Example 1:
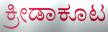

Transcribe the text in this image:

ಕ್ರೀಡಾಕೂಟ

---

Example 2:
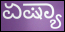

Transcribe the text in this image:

ಏಷ್ಯಾ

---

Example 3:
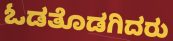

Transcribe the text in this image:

ಓಡತೊಡಗಿದರು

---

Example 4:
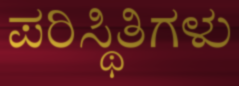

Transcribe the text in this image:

ಪರಿಸ್ಥಿತಿಗಳು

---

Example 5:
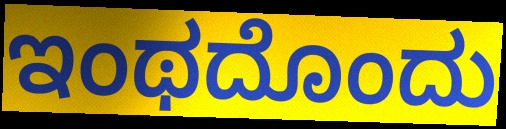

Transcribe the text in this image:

ಇಂಥದೊಂದು